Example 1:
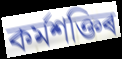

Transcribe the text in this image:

কৰ্মশক্তিৰ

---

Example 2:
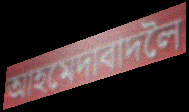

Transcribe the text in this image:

আহমেদাবাদলৈ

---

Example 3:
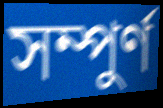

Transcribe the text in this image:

সম্পুৰ্ণ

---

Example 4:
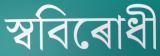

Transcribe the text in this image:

স্ববিৰোধী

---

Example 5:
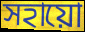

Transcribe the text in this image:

সহায়ো